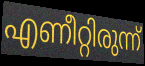
എണീറ്റിരുന്ന്